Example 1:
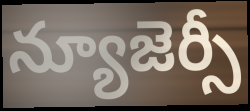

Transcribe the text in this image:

న్యూజెర్సీ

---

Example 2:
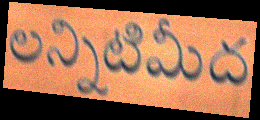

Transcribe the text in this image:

లన్నిటిమీద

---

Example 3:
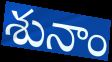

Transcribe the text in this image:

శునాం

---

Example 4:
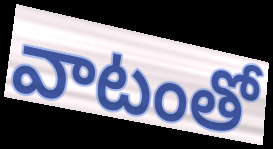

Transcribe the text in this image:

వాటంతో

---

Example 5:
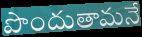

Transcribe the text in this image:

పొందుతామనే